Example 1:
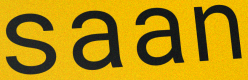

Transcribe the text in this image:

saan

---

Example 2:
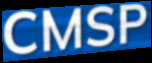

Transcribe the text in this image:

CMSP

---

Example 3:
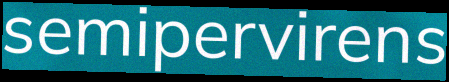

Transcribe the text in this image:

semipervirens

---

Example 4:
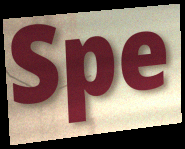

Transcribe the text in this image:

Spe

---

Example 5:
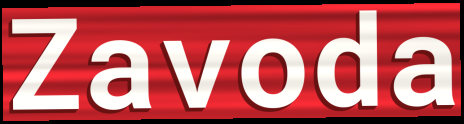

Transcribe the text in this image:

Zavoda